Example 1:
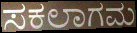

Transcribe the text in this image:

ಸಕಲಾಗಮ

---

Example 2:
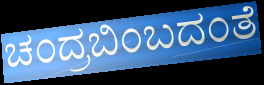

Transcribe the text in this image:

ಚಂದ್ರಬಿಂಬದಂತೆ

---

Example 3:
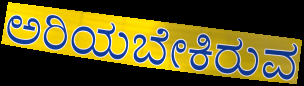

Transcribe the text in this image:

ಅರಿಯಬೇಕಿರುವ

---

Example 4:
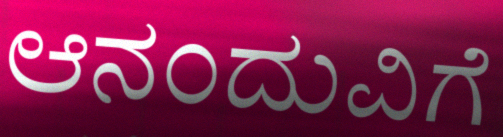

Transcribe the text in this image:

ಆನಂದುವಿಗೆ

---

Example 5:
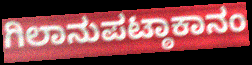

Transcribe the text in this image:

ಗಿಲಾನುಪಟ್ಠಾಕಾನಂ